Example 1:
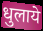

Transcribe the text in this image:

धुलाये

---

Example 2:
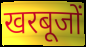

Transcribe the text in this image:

खरबूजों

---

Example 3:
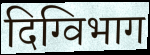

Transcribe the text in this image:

दिग्विभाग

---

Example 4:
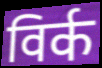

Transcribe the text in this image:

विर्क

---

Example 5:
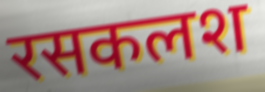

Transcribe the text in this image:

रसकलश